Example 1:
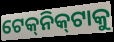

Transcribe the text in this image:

ଟେକ୍‌ନିକ୍‌ଟାକୁ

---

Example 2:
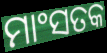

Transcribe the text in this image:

ମାଂସତକ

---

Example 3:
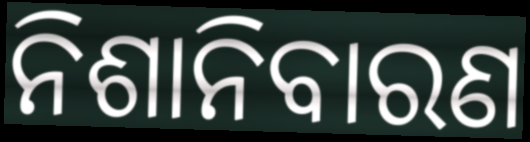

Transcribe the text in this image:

ନିଶାନିବାରଣ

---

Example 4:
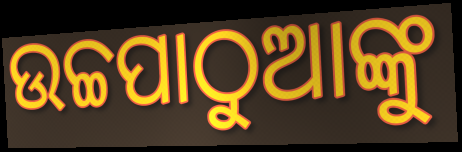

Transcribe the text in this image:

ଉଚ୍ଚପାଠୁଆଙ୍କୁ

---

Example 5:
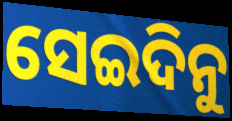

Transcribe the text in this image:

ସେଇଦିନୁ